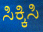
ಸಿಕ್ಕಿಸಿ